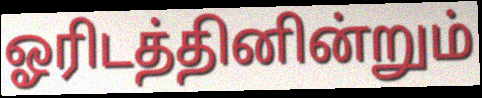
ஓரிடத்தினின்றும்